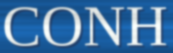
CONH